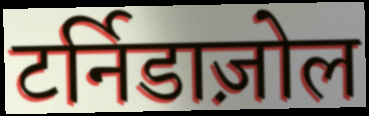
टर्निडाज़ोल